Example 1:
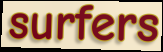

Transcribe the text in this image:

surfers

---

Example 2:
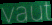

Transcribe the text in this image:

vaut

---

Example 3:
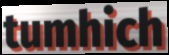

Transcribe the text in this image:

tumhich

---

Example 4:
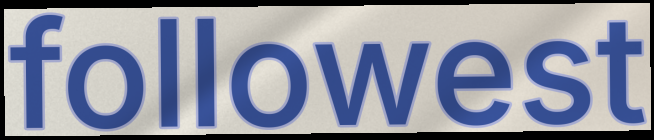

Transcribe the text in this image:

followest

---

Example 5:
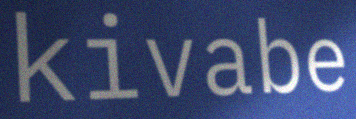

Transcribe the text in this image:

kivabe